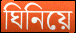
ঘিনিয়ে